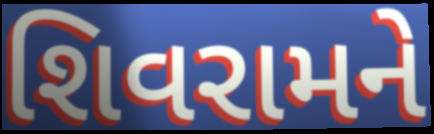
શિવરામને